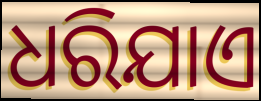
ଧରିଯାଏ